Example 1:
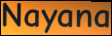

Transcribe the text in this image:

Nayana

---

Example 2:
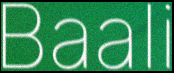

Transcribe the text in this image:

Baali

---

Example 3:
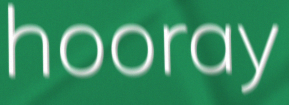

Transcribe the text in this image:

hooray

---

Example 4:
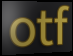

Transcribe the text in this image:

otf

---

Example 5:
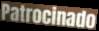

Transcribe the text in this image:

Patrocinado